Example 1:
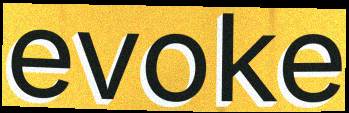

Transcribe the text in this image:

evoke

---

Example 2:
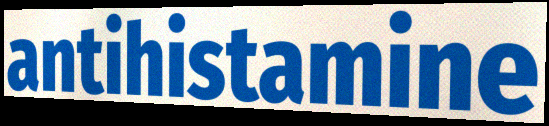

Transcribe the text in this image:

antihistamine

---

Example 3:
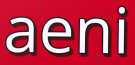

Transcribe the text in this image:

aeni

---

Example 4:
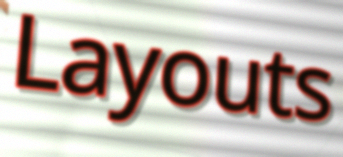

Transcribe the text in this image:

Layouts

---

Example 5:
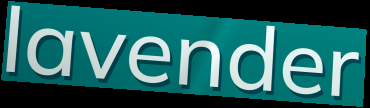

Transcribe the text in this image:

lavender